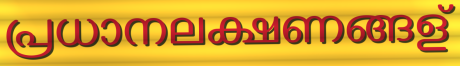
പ്രധാനലക്ഷണങ്ങള്